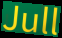
Jull